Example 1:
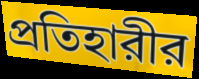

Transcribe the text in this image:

প্রতিহারীর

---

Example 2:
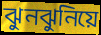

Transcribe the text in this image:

ঝুনঝুনিয়ে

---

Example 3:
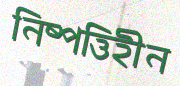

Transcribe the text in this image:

নিষ্পত্তিহীন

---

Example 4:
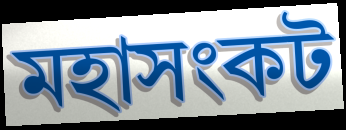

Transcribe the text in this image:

মহাসংকট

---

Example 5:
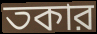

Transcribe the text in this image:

তকার